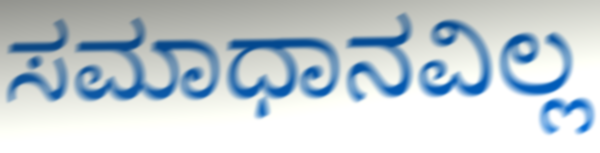
ಸಮಾಧಾನವಿಲ್ಲ